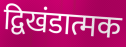
द्विखंडात्मक